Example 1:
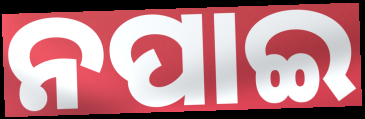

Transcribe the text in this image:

ନପାଇ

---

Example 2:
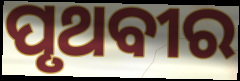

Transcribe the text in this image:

ପୃଥବୀର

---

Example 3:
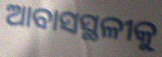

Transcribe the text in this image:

ଆବାସସ୍ଥଳୀକୁ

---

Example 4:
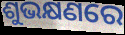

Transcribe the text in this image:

ଶୁଭକ୍ଷଣରେ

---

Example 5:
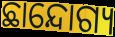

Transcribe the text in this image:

ଛାନ୍ଦୋଗ୍ୟ